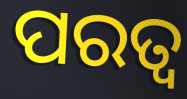
ପରତ୍ୱ